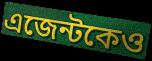
এজেন্টকেও